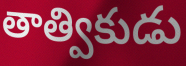
తాత్వికుడు